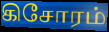
கிசோரம்